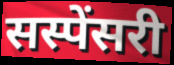
सस्पेंसरी